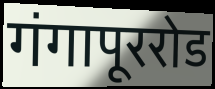
गंगापूररोड